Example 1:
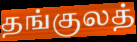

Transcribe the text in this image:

தங்குலத்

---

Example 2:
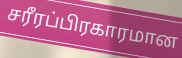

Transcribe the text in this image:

சரீரப்பிரகாரமான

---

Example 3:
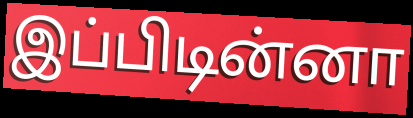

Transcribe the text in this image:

இப்பிடின்னா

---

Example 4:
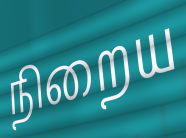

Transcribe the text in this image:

நிறைய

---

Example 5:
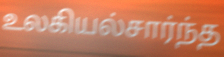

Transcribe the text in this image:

உலகியல்சார்ந்த